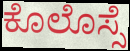
ಕೊಲೊಸ್ಸೆ